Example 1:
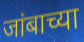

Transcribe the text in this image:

जांबाच्या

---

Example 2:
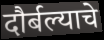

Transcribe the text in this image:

दौर्बल्याचे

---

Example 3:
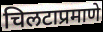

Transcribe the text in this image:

चिलटाप्रमाणे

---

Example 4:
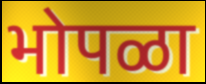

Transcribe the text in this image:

भोपळा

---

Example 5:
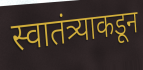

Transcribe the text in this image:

स्वातंत्र्याकडून